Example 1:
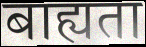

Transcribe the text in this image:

बाह्यता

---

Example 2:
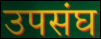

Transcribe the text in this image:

उपसंघ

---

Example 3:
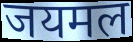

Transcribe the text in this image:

जयमल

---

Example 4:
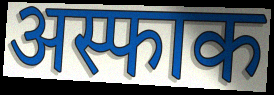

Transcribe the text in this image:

अस्फाक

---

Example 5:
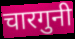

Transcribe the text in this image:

चारगुनी